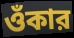
ওঁকার